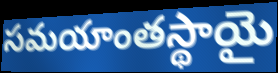
సమయాంతస్థాయై